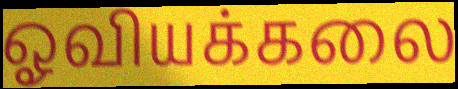
ஓவியக்கலை